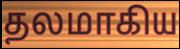
தலமாகிய